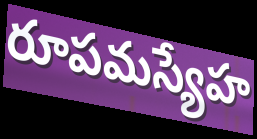
రూపమస్యేహ